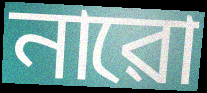
নাৱো